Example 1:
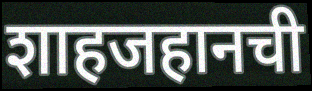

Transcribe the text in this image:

शाहजहानची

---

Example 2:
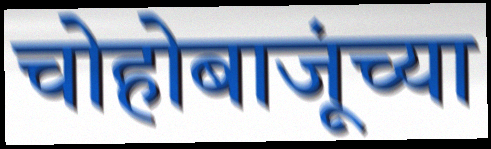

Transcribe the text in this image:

चोहोबाजूंच्या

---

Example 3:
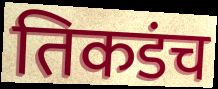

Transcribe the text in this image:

तिकडंच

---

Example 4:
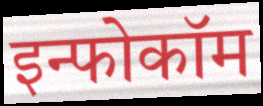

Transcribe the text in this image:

इन्फोकॉम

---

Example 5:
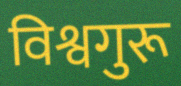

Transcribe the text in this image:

विश्वगुरू